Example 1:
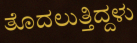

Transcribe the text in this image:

ತೊದಲುತ್ತಿದ್ದಳು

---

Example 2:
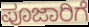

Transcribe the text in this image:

ಪೂಜಾರಿಗೆ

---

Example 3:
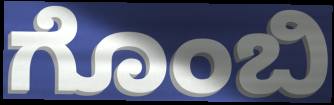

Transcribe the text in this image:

ಗೊಂಬಿ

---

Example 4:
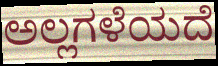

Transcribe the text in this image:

ಅಲ್ಲಗಳೆಯದೆ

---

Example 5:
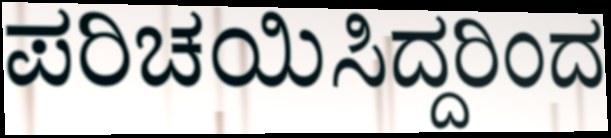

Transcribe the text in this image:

ಪರಿಚಯಿಸಿದ್ದರಿಂದ